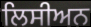
ਲਿਸੀਅਨ